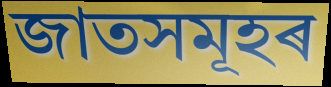
জাতসমূহৰ